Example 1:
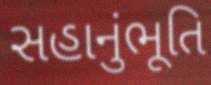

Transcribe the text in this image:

સહાનુંભૂતિ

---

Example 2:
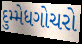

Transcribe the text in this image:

દુમ્મેધગોચરો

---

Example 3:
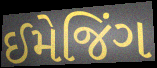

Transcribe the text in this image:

ઈમેજિંગ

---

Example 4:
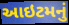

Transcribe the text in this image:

આઇટમનું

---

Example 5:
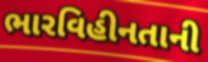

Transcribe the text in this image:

ભારવિહીનતાની